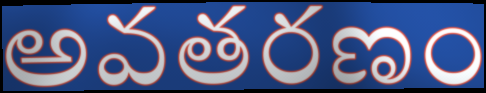
అవతరణం